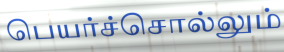
பெயர்ச்சொல்லும்